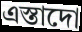
এস্তাদো